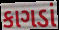
કાગડાં